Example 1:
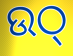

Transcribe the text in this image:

ଉଠ୍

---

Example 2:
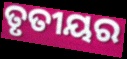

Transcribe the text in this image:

ତୃତୀୟର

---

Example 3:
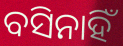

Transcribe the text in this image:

ବସିନାହିଁ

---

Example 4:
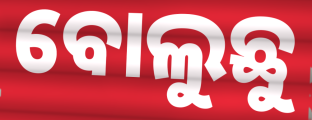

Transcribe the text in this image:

ବୋଲୁଛୁ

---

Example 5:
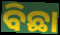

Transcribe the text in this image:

ବିଛା